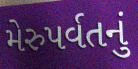
મેરુપર્વતનું